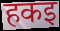
हकइ